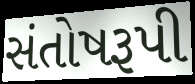
સંતોષરૂપી